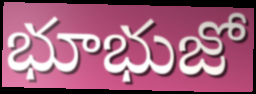
భూభుజో